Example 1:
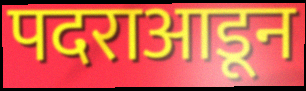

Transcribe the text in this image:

पदराआडून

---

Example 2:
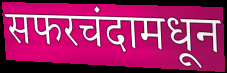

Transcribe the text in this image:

सफरचंदामधून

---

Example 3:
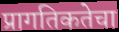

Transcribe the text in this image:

प्रागतिकतेचा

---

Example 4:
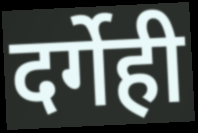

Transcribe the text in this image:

दर्गेही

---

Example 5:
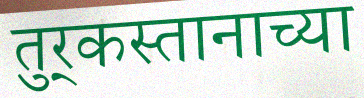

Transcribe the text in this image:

तुर्कस्तानाच्या